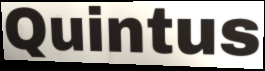
Quintus